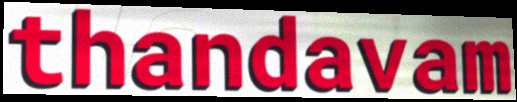
thandavam